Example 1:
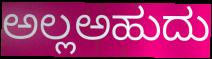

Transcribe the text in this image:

ಅಲ್ಲಅಹುದು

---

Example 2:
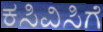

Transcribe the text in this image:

ಕಸಿವಿಸಿಗೆ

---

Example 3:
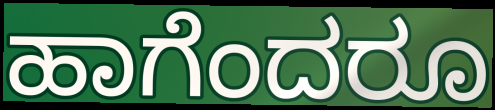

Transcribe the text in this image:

ಹಾಗೆಂದರೂ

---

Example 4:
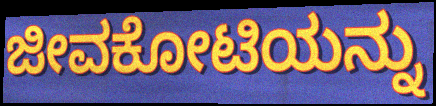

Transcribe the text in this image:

ಜೀವಕೋಟಿಯನ್ನು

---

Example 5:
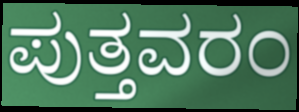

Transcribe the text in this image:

ಪುತ್ತವರಂ